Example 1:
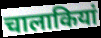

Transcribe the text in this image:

चालाकियां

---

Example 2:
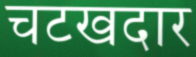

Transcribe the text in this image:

चटखदार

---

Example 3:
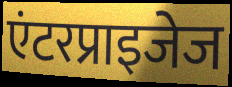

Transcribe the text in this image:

एंटरप्राइजेज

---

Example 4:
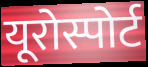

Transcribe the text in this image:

यूरोस्पोर्ट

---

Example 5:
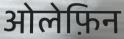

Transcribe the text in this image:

ओलेफ़िन